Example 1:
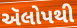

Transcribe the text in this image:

ઍલોપથી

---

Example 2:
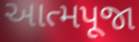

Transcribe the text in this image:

આત્મપૂજા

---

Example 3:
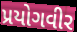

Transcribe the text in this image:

પ્રયોગવીર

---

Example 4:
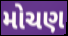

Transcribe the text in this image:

મોચણ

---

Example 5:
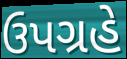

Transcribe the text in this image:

ઉપગ્રહે